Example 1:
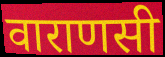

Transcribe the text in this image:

वाराणसी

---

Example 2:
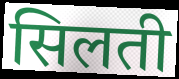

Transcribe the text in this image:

सिलती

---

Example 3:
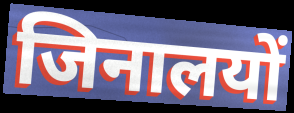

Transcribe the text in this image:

जिनालयों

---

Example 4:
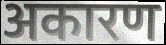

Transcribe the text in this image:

अकारण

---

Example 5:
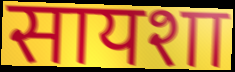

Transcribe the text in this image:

सायशा